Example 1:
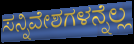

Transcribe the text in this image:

ಸನ್ನಿವೇಶಗಳನ್ನೆಲ್ಲ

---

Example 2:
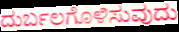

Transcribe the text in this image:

ದುರ್ಬಲಗೊಳಿಸುವುದು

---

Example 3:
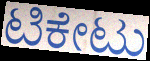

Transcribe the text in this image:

ಟಿಕೇಟು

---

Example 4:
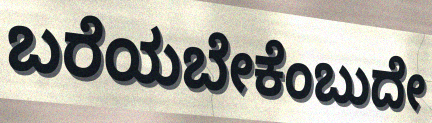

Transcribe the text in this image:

ಬರೆಯಬೇಕೆಂಬುದೇ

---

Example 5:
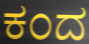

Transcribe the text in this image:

ಕಂದ